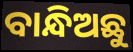
ବାନ୍ଧିଅଛୁ